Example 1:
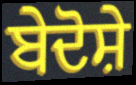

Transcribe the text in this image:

ਬੇਦੋਸ਼ੇ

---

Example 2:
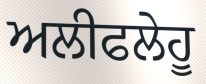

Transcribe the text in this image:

ਅਲੀਫਲੇਹੂ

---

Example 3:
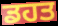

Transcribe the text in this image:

ਡਹਤ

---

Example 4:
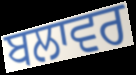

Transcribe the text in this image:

ਬਲਾਵਰ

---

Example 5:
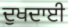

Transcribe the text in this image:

ਦੁਖਦਾਈ